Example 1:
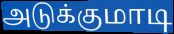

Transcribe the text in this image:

அடுக்குமாடி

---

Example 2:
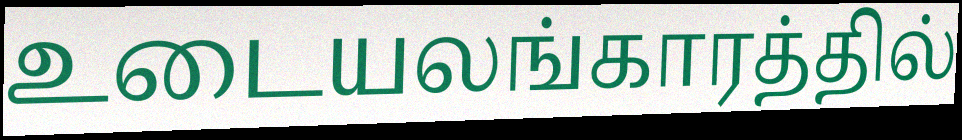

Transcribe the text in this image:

உடையலங்காரத்தில்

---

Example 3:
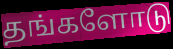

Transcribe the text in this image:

தங்களோடு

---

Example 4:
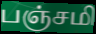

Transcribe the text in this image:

பஞ்சமி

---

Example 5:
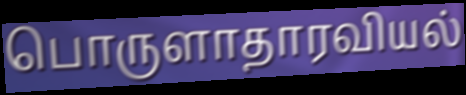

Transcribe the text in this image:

பொருளாதாரவியல்